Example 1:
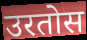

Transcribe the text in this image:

उरतोस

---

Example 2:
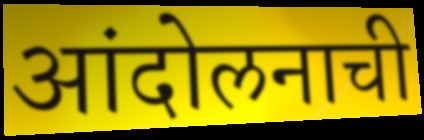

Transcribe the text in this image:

आंदोलनाची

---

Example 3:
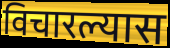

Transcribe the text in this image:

विचारल्यास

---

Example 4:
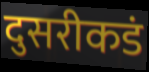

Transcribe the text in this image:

दुसरीकडं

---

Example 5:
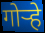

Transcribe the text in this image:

गोऱ्हे